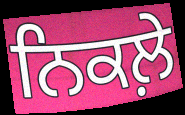
ਨਿਕਲ਼ੇ